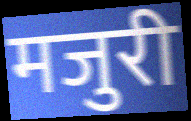
मजुरी